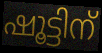
ഷൂട്ടിന്